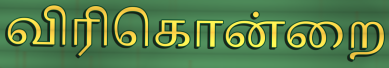
விரிகொன்றை